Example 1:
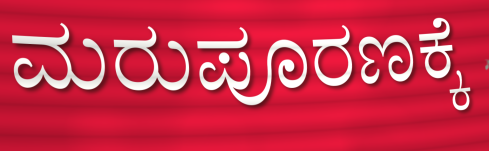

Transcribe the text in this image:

ಮರುಪೂರಣಕ್ಕೆ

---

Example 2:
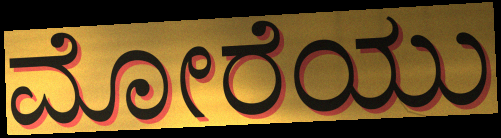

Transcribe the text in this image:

ಮೋರೆಯು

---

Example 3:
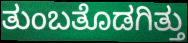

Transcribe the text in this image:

ತುಂಬತೊಡಗಿತ್ತು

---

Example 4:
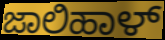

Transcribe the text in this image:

ಜಾಲಿಹಾಳ್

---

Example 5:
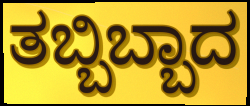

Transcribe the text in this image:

ತಬ್ಬಿಬ್ಬಾದ